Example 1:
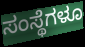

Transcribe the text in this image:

ಸಂಸ್ಥೆಗಳೂ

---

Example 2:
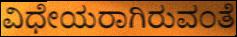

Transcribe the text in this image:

ವಿಧೇಯರಾಗಿರುವಂತೆ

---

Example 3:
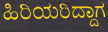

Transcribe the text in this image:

ಹಿರಿಯರಿದ್ದಾಗ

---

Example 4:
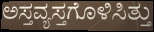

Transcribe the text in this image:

ಅಸ್ತವ್ಯಸ್ತಗೊಳಿಸಿತ್ತು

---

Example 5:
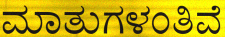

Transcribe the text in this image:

ಮಾತುಗಳಂತಿವೆ